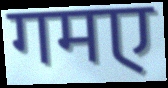
गमए